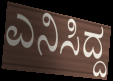
ಎನಿಸಿದ್ದ